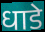
धाडे